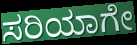
ಸರಿಯಾಗೇ